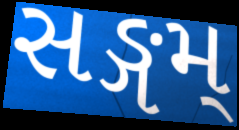
સઙ્ગમ્